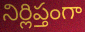
నిర్లిప్తంగా